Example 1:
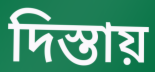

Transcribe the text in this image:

দিস্তায়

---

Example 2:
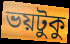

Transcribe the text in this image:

ভয়টুকু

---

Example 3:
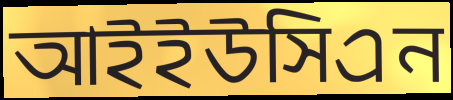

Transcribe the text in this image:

আইইউসিএন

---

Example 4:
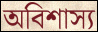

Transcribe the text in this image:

অবিশাস্য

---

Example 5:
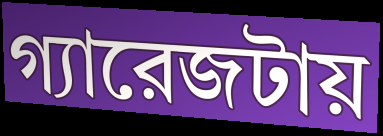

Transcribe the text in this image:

গ্যারেজটায়